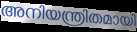
അനിയന്ത്രിതമായി